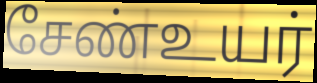
சேண்உயர்